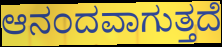
ಆನಂದವಾಗುತ್ತದೆ